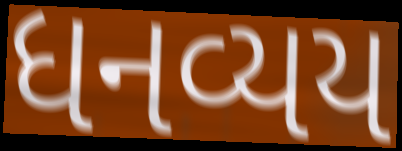
ધનવ્યય